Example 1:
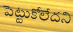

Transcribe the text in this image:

పెట్టుకోలేదని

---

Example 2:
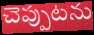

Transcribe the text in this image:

చెప్పుటను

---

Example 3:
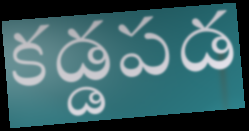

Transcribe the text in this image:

కడ్డపడ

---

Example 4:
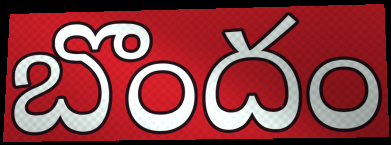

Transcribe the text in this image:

బొందం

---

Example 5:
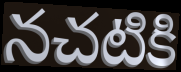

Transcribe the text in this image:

నచటికి